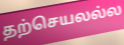
தற்செயலல்ல